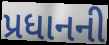
પ્રધાનની